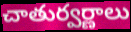
చాతుర్వర్ణాలు